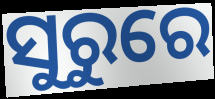
ସୁରୁରେ